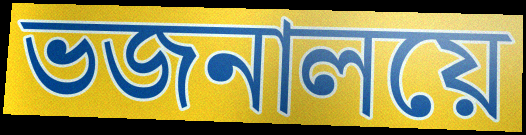
ভজনালয়ে